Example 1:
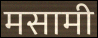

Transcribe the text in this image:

मसामी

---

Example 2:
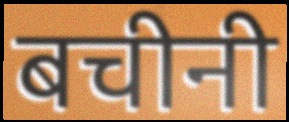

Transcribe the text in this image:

बचीनी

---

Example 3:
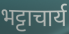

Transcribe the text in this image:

भट्टाचार्य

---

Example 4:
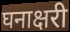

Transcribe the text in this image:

घनाक्षरी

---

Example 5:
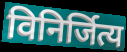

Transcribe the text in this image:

विनिर्जित्य